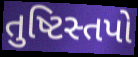
તુષ્ટિસ્તપો